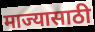
माज्यासाठी